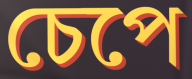
চেপে